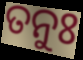
ତନୁଃ